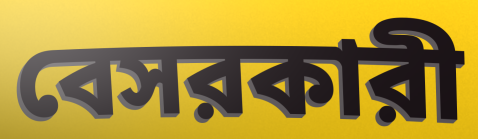
বেসরকারী